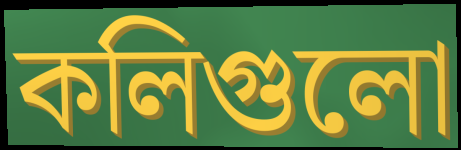
কলিগুলো